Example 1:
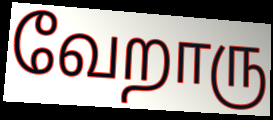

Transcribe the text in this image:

வேறாரு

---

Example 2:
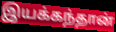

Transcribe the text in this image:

இயக்கந்தான்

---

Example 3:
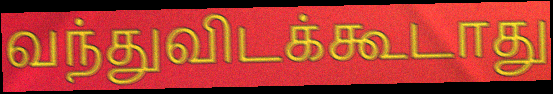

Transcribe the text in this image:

வந்துவிடக்கூடாது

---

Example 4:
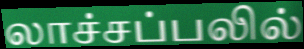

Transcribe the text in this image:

லாச்சப்பலில்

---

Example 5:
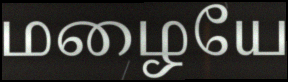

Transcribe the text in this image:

மழையே